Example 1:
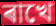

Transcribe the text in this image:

ৰাখে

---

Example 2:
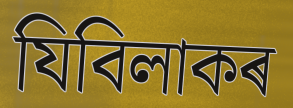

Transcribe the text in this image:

যিবিলাকৰ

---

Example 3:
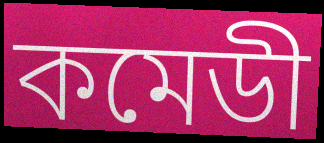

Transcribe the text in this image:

কমেডী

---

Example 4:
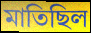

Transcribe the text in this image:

মাতিছিল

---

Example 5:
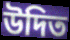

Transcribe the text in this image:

উদিত